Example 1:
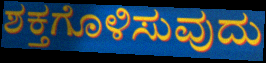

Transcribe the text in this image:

ಶಕ್ತಗೊಳಿಸುವುದು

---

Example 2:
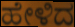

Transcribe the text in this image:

ಹೇಳಿದ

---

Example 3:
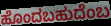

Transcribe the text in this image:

ಹೊಂದಬಹುದೆಂಬ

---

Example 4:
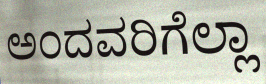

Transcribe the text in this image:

ಅಂದವರಿಗೆಲ್ಲಾ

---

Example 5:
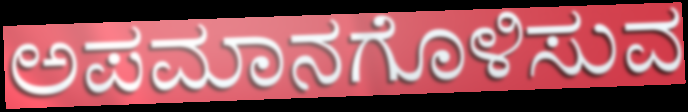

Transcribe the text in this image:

ಅಪಮಾನಗೊಳಿಸುವ